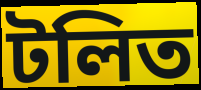
টলিত